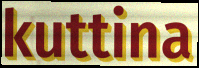
kuttina